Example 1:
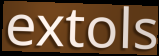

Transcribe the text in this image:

extols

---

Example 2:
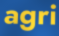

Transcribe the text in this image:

agri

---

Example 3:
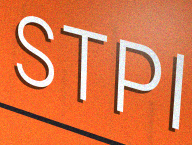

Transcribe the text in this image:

STPI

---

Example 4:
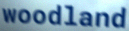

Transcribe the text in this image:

woodland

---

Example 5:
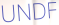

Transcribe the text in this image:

UNDF